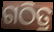
ଗଠିତ୍ର